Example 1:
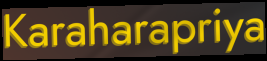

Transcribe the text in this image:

Karaharapriya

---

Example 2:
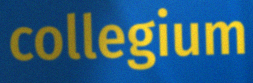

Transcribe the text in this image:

collegium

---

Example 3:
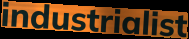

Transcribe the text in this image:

industrialist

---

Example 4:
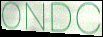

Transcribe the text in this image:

ONDC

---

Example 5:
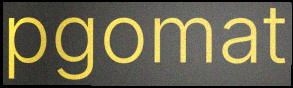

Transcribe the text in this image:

pgomat